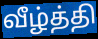
வீழ்த்தி